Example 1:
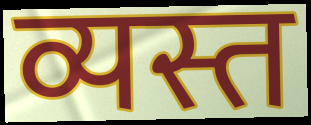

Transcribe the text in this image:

व्यस्त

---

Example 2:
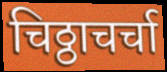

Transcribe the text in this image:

चिठ्ठाचर्चा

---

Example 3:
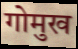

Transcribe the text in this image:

गोमुख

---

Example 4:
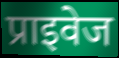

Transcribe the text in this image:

प्राइवेज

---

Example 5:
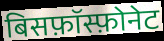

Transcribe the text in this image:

बिसफ़ॉस्फ़ोनेट